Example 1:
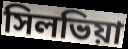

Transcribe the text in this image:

সিলভিয়া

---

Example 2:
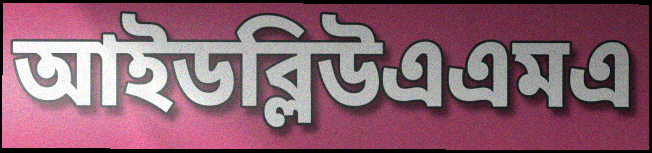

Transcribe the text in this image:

আইডব্লিউএএমএ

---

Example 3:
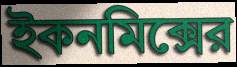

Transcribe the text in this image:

ইকনমিক্সের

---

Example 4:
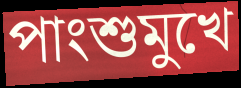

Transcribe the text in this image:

পাংশুমুখে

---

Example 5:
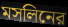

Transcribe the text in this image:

মসলিনের